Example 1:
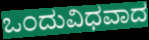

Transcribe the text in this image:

ಒಂದುವಿಧವಾದ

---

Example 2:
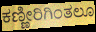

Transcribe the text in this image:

ಕಣ್ಣೀರಿಗಿಂತಲೂ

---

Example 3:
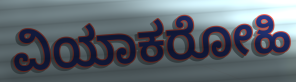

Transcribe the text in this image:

ವಿಯಾಕರೋಹಿ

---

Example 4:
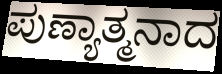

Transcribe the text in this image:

ಪುಣ್ಯಾತ್ಮನಾದ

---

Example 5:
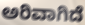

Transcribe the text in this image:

ಅರಿವಾಗಿದೆ